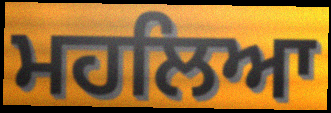
ਮਹਲਿਆ